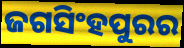
ଜଗସିଂହପୁରର